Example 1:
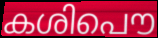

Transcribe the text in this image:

കശിപൌ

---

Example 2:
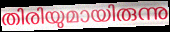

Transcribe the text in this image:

തിരിയുമായിരുന്നു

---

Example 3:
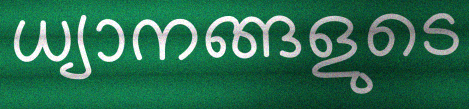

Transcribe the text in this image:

ധ്യാനങ്ങളുടെ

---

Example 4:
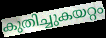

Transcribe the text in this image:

കുതിച്ചുകയറ്റം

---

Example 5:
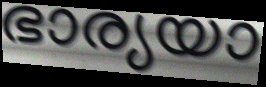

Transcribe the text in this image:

ഭാര്യയാ